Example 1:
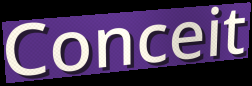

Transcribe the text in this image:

Conceit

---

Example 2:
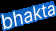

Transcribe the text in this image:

bhakta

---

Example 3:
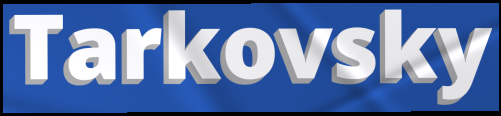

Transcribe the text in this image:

Tarkovsky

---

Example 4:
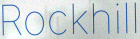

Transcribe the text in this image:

Rockhill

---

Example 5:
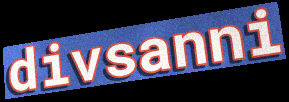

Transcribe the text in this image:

divsanni